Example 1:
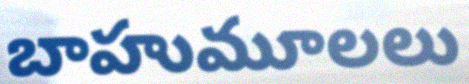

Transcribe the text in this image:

బాహుమూలలు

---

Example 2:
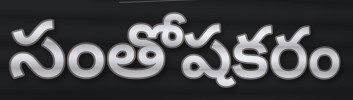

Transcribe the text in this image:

సంతోషకరం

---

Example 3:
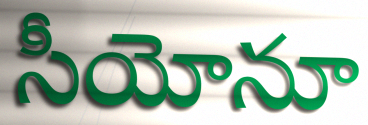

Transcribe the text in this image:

సీయోనూ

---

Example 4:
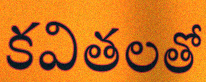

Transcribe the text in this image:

కవితలతో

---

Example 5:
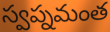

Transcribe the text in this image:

స్వప్నమంత